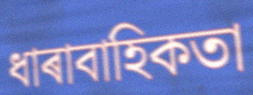
ধাৰাবাহিকতা